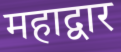
महाद्वार